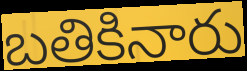
బతికినారు